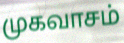
முகவாசம்